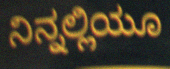
ನಿನ್ನಲ್ಲಿಯೂ